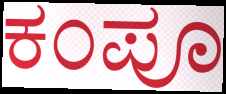
ಕಂಪೂ